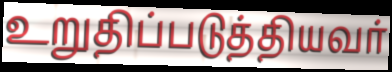
உறுதிப்படுத்தியவர்